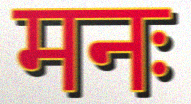
मनः